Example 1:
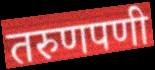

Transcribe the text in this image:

तरुणपणी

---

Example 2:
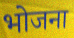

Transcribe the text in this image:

भोजना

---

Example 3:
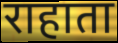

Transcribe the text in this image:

राहाता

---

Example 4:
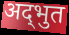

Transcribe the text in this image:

अद्‌भुत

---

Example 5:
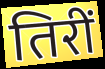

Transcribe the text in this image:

तिरीं